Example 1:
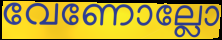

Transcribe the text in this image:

വേണോല്ലോ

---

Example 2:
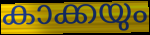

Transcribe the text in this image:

കാക്കയും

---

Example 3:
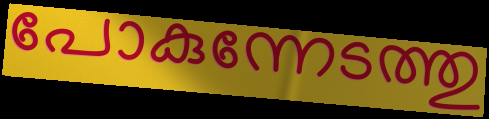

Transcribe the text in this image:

പോകുന്നേടത്തു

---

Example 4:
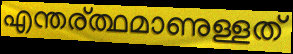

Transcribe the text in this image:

എന്തര്ത്ഥമാണുള്ളത്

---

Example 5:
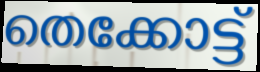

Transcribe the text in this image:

തെക്കോട്ട്